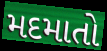
મદમાતો